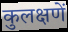
कुलक्षणें